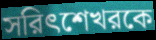
সরিৎশেখরকে